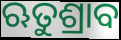
ଋତୁଶ୍ରାବ